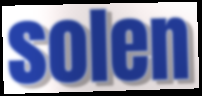
solen